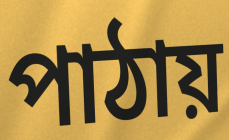
পাঠায়